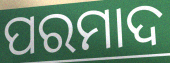
ପରମାଦ